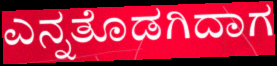
ಎನ್ನತೊಡಗಿದಾಗ